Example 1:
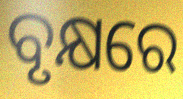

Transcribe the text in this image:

ବୃକ୍ଷରେ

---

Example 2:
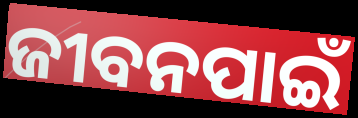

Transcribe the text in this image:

ଜୀବନପାଇଁ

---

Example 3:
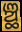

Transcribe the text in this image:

ଞ୍ଛ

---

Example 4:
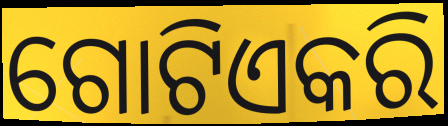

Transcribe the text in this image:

ଗୋଟିଏକରି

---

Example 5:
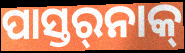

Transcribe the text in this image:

ପାସ୍ତର୍‍ନାକ୍